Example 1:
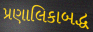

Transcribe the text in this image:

પ્રણાલિકાબદ્ધ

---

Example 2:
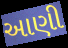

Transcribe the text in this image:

આણી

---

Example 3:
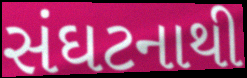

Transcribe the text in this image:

સંઘટનાથી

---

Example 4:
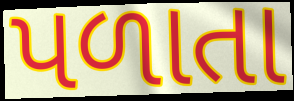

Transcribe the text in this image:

પળાતા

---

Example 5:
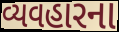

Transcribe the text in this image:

વ્યવહારના